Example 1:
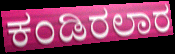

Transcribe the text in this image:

ಕಂಡಿರಲಾರ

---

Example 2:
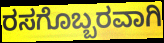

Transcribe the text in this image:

ರಸಗೊಬ್ಬರವಾಗಿ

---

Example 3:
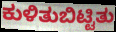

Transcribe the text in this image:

ಕುಳಿತುಬಿಟ್ಟಿತು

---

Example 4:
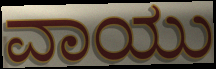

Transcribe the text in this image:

ವಾಯು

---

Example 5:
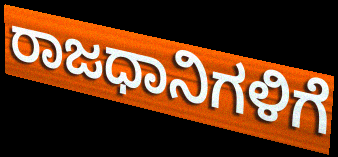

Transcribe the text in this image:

ರಾಜಧಾನಿಗಳಿಗೆ